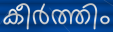
കീർത്തിം